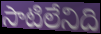
సాటిలేనిది